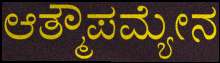
ಆತ್ಮೌಪಮ್ಯೇನ